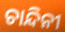
ଚାନ୍ଦିନୀ